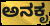
ಅನಕೃ